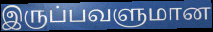
இருப்பவளுமான